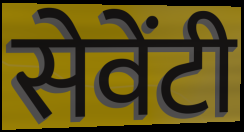
सेवेंटी